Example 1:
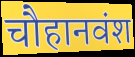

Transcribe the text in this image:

चौहानवंश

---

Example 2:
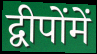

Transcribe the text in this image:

द्वीपोंमें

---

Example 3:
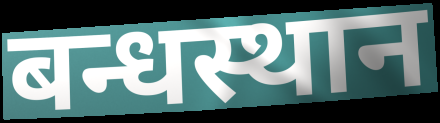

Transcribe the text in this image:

बन्धस्थान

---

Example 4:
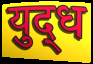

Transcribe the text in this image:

युद्‍ध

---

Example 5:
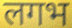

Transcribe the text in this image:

लगभ